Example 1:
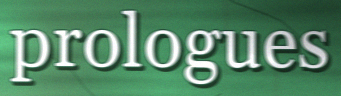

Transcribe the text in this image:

prologues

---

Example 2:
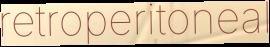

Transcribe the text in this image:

retroperitoneal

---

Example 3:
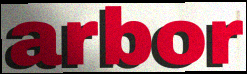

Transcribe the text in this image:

arbor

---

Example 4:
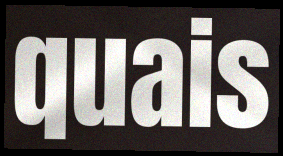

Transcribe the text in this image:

quais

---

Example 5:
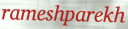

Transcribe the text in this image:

rameshparekh